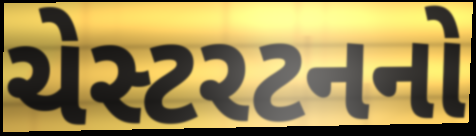
ચેસ્ટરટનનો